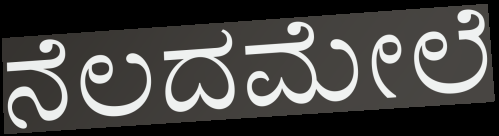
ನೆಲದಮೇಲೆ